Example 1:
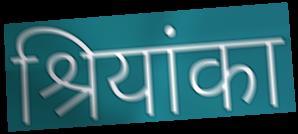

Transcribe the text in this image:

श्रियांका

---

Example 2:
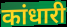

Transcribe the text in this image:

कांधारी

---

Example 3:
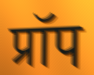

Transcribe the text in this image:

प्रॉप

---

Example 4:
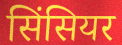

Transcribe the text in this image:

सिंसियर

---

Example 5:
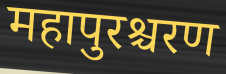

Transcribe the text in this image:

महापुरश्चरण